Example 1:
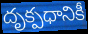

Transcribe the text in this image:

దృక్పధానికీ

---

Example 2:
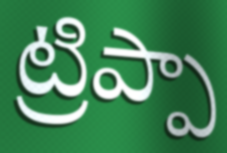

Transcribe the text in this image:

ట్రిప్పా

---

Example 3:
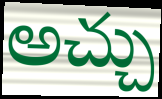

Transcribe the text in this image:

అచ్చు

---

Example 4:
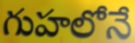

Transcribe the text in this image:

గుహలోనే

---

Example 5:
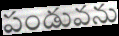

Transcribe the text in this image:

పండువను